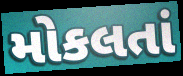
મોકલતાં